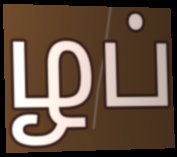
ழப்